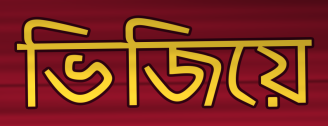
ভিজিয়ে